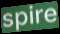
spire